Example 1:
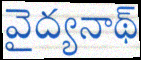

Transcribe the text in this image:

వైద్యనాథ్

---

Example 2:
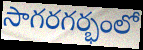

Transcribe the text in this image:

సాగరగర్భంలో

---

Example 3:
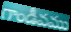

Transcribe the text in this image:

గాండీవము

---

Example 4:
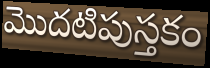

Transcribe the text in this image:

మొదటిపుస్తకం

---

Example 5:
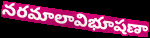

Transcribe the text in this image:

నరమాలావిభూషణా